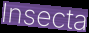
Insecta